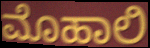
ಮೊಹಾಲಿ